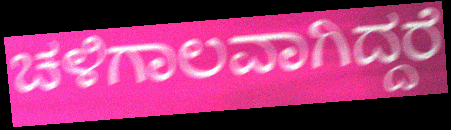
ಚಳಿಗಾಲವಾಗಿದ್ದರೆ